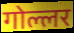
गोल्लर